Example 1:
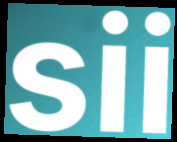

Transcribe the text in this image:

sii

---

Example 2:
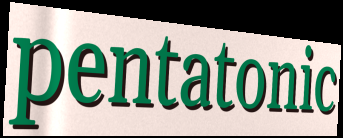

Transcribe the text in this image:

pentatonic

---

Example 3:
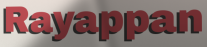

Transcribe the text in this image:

Rayappan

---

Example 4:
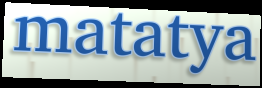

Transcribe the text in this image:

matatya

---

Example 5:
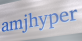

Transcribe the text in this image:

amjhyper